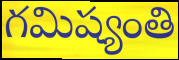
గమిష్యంతి